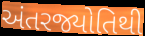
અંતરજ્યોતિથી